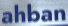
ahban